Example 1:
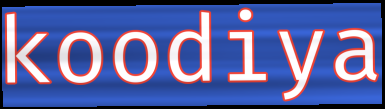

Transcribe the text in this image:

koodiya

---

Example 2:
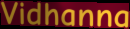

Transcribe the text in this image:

Vidhanna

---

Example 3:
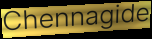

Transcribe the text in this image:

Chennagide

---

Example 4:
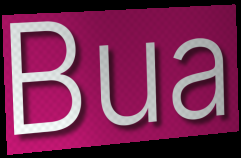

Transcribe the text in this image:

Bua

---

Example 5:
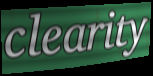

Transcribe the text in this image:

clearity